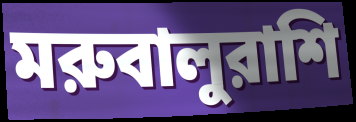
মরুবালুরাশি